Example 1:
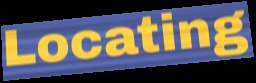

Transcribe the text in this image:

Locating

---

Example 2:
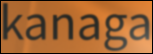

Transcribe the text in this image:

kanaga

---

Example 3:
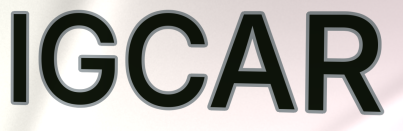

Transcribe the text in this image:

IGCAR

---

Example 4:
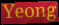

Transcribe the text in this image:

Yeong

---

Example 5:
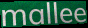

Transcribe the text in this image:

mallee